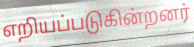
எறியப்படுகின்றனர்